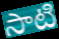
సాటి